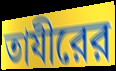
তাযীরের